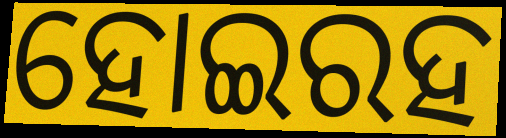
ହୋଇରହ